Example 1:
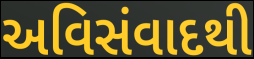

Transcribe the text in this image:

અવિસંવાદથી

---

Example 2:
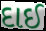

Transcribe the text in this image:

દાઈ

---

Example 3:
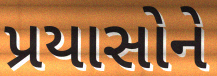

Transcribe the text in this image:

પ્રયાસોને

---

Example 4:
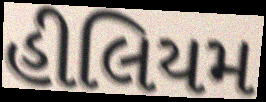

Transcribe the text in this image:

હીલિયમ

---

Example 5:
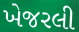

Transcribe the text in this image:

ખેજરલી